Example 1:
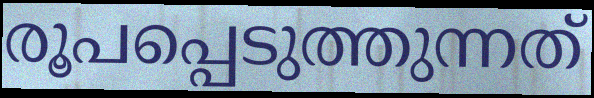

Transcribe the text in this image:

രൂപപ്പെടുത്തുന്നത്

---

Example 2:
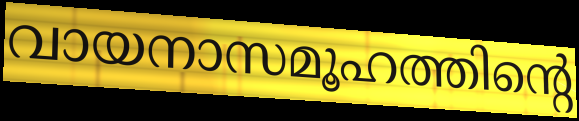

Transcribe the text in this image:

വായനാസമൂഹത്തിന്റെ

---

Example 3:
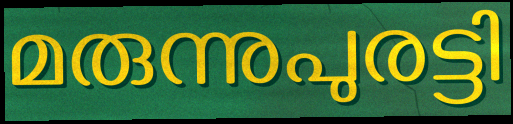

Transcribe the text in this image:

മരുന്നുപുരട്ടി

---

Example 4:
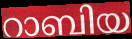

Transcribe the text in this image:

റാബിയ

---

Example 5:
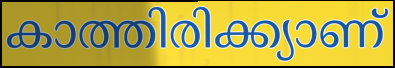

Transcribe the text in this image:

കാത്തിരിക്ക്യാണ്